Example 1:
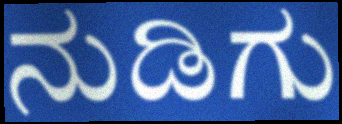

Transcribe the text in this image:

ನುಡಿಗು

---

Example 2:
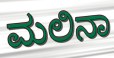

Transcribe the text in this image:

ಮಲಿನಾ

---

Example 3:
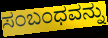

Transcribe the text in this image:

ಸಂಬಂಧವನ್ನು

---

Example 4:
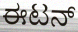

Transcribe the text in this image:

ಈಟನ್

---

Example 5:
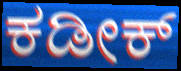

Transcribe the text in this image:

ಕಡೀಕ್